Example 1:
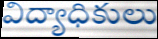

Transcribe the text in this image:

విద్యాధికులు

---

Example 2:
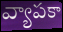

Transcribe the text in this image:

వ్యాపకా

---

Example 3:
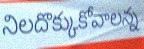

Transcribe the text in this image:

నిలదొక్కుకోవాలన్న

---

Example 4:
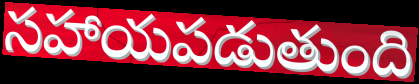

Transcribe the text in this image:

సహాయపడుతుంది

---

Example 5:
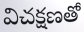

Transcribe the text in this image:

విచక్షణతో